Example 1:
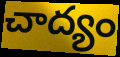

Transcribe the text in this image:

చాద్యం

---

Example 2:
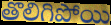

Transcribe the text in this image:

తొలిగిపోయి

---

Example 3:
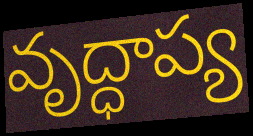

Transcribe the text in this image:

వృద్ధాప్య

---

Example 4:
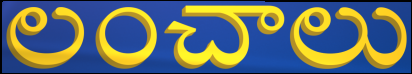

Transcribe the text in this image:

లంచాలు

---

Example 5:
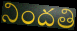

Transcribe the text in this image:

నిందతి